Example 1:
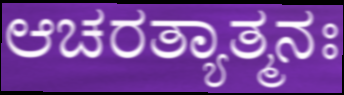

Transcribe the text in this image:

ಆಚರತ್ಯಾತ್ಮನಃ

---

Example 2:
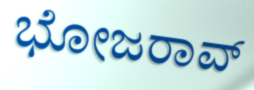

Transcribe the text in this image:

ಭೋಜರಾವ್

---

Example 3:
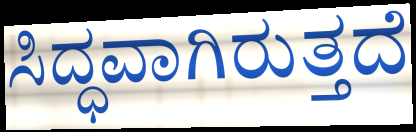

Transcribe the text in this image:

ಸಿದ್ಧವಾಗಿರುತ್ತದೆ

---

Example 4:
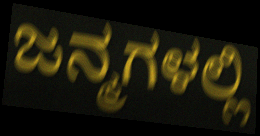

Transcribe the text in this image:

ಜನ್ಮಗಳಲ್ಲಿ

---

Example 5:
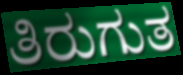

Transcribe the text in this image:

ತಿರುಗುತ